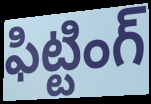
ఫిట్టింగ్